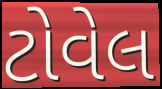
ટોવેલ